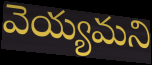
వెయ్యమని